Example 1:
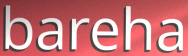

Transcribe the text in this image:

bareha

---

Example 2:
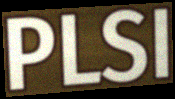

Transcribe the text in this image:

PLSI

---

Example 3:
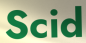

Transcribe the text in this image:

Scid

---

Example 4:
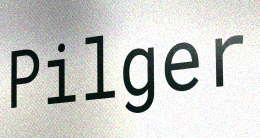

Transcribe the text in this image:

Pilger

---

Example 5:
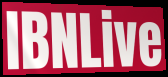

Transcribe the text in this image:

IBNLive